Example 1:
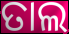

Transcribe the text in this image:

ତାଲ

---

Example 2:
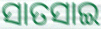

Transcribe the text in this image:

ସାତସାଇ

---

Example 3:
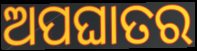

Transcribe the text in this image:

ଅପଘାତର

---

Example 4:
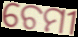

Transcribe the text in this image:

ଚେମୀ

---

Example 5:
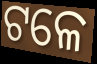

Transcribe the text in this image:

ଟଳେ